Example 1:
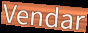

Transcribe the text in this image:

Vendar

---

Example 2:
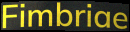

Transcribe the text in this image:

Fimbriae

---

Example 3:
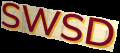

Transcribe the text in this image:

SWSD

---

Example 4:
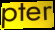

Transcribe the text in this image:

pter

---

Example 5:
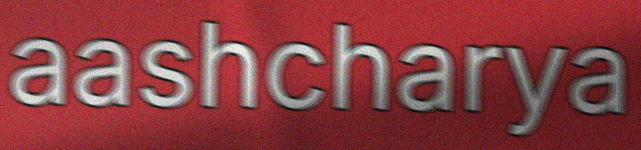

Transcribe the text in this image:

aashcharya